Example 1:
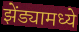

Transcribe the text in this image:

झेंड्यामध्ये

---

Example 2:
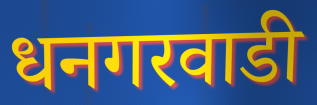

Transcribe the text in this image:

धनगरवाडी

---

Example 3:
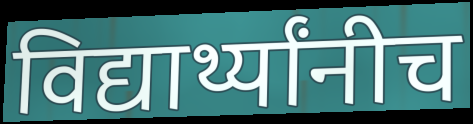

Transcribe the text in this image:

विद्यार्थ्यांनीच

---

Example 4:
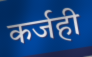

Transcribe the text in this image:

कर्जही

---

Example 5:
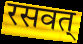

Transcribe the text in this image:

रसवत्